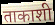
ताकाशी